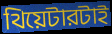
থিয়েটারটাই